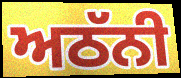
ਅਠੱਨੀ